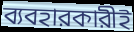
ব্যবহারকারীই